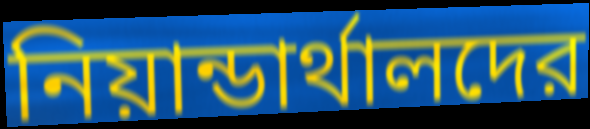
নিয়ান্ডার্থালদের